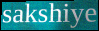
sakshiye